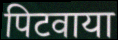
पिटवाया